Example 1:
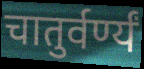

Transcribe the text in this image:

चातुर्वर्ण्यं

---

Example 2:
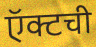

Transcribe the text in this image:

ऍक्टची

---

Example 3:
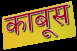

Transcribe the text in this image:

काबूस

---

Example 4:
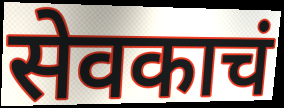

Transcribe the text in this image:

सेवकाचं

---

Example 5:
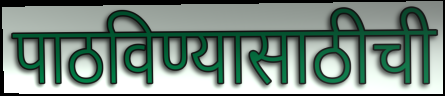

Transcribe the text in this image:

पाठविण्यासाठीची